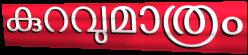
കുറവുമാത്രം